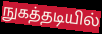
நுகத்தடியில்